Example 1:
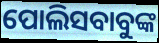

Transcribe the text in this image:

ପୋଲିସବାବୁଙ୍କ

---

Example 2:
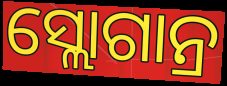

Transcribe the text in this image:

ସ୍ଲୋଗାନ୍ର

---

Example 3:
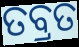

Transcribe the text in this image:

ତବ୍ରତ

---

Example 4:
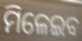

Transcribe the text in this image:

ମିଳେଇବ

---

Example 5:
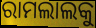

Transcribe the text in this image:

ରାମଲାଲକୁ